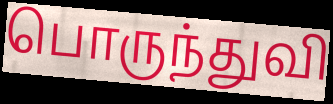
பொருந்துவி